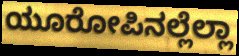
ಯೂರೋಪಿನಲ್ಲೆಲ್ಲಾ